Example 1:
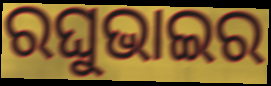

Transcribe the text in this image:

ରଘୁଭାଇର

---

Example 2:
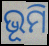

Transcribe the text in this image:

ଭୂମି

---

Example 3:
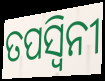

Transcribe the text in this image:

ତପସ୍ଵିନୀ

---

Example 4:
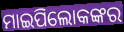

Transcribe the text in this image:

ମାଇପିଲୋକଙ୍କର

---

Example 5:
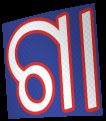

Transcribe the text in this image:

ଗା